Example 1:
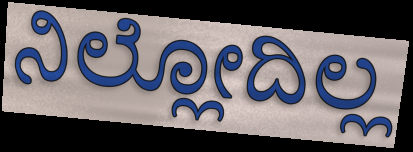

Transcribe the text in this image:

ನಿಲ್ಲೋದಿಲ್ಲ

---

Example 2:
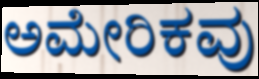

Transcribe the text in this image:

ಅಮೇರಿಕವು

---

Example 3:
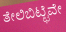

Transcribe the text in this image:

ತೇಲಿಬಿಟ್ಟೆವೇ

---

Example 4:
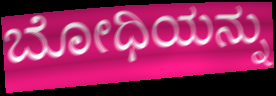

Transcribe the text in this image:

ಬೋಧಿಯನ್ನು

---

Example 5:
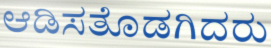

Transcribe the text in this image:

ಆಡಿಸತೊಡಗಿದರು